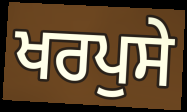
ਖਰਪੁਸੇ